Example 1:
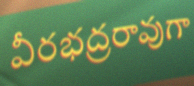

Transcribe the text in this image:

వీరభద్రరావుగా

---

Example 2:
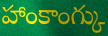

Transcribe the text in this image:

హాంకాంగ్కు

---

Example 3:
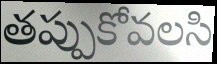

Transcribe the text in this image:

తప్పుకోవలసి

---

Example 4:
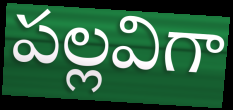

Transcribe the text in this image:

పల్లవిగా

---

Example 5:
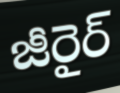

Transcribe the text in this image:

జీరైర్